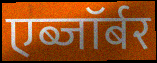
एब्जॉर्बर